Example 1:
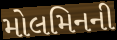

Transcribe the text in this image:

મોલમિનની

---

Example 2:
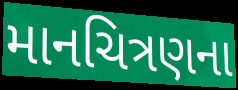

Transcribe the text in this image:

માનચિત્રણના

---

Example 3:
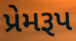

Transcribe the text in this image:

પ્રેમરૂપ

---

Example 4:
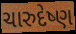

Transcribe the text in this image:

ચારુદેષ્ણ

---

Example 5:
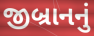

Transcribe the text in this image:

જીબ્રાનનું